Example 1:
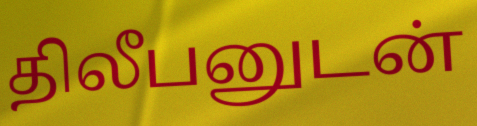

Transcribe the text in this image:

திலீபனுடன்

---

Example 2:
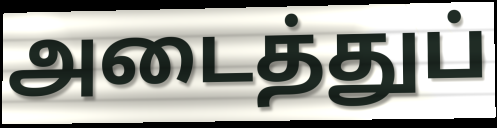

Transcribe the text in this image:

அடைத்துப்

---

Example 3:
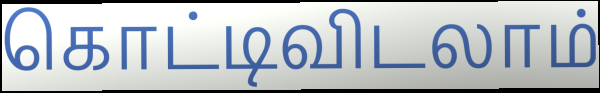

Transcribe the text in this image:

கொட்டிவிடலாம்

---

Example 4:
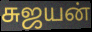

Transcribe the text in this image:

சுஜயன்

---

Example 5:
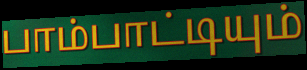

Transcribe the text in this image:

பாம்பாட்டியும்